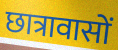
छात्रावासों